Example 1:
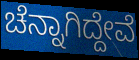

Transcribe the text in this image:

ಚೆನ್ನಾಗಿದ್ದೇವೆ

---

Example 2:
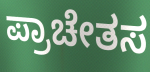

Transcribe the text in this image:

ಪ್ರಾಚೇತಸ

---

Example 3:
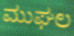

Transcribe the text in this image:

ಮುಘಲ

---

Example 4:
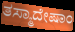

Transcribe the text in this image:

ತಸ್ಮಾದೇಷಾಂ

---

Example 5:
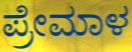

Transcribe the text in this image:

ಪ್ರೇಮಾಳ